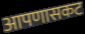
आपणासकट